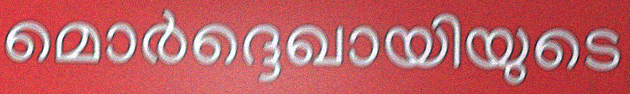
മൊർദ്ദെഖായിയുടെ